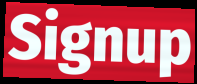
Signup